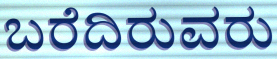
ಬರೆದಿರುವರು